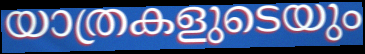
യാത്രകളുടെയും